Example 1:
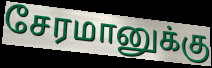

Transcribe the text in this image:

சேரமானுக்கு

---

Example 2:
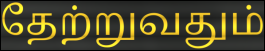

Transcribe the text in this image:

தேற்றுவதும்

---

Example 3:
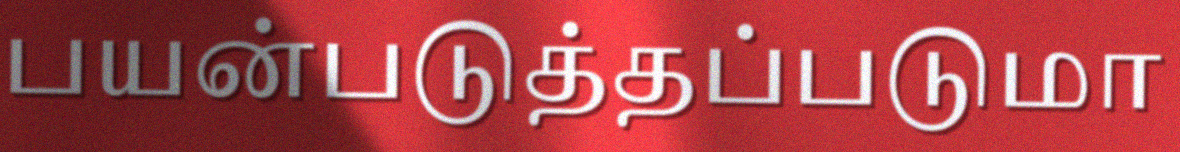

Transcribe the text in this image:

பயன்படுத்தப்படுமா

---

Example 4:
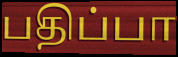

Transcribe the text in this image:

பதிப்பா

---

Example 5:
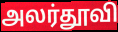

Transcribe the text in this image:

அலர்தூவி